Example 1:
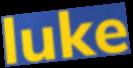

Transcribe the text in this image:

luke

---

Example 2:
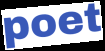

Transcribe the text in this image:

poet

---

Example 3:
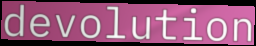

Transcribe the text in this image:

devolution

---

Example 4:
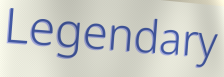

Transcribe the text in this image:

Legendary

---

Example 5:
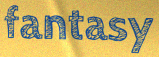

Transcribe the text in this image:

fantasy